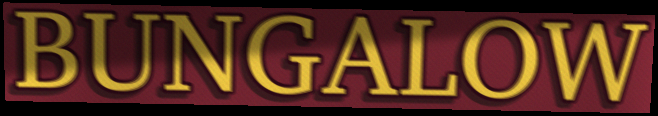
BUNGALOW